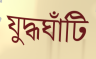
যুদ্ধঘাঁটি